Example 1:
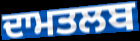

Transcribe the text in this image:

ਦਾਮਤਲਬ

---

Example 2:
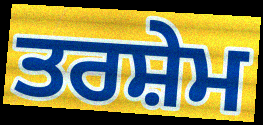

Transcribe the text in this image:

ਤਰਸ਼ੇਮ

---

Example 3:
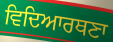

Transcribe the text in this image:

ਵਿਦਿਆਰਥਣਾ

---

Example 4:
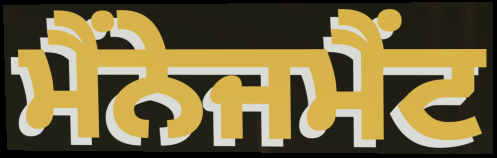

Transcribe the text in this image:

ਮੈਂਨੇਜਮੈਂਟ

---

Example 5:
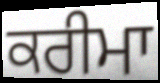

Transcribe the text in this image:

ਕਰੀਮਾ